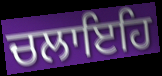
ਚਲਾਇਹਿ